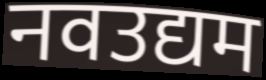
नवउद्यम